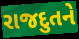
રાજદુતને